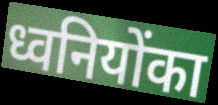
ध्वनियोंका